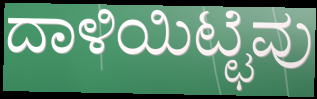
ದಾಳಿಯಿಟ್ಟೆವು